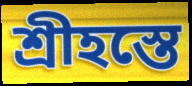
শ্রীহস্তে